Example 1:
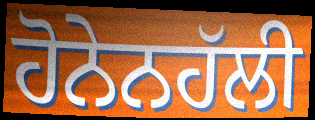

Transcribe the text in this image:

ਹੋਨੇਨਹੱਲੀ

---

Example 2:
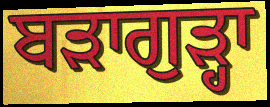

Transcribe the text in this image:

ਬੜਾਗੁੜ੍ਹਾ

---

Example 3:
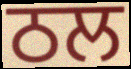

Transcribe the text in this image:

ਠਲ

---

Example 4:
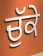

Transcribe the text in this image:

ਚੁੱਕੇ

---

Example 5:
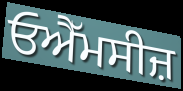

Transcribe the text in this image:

ਓਐੱਮਸੀਜ਼